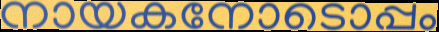
നായകനോടൊപ്പം